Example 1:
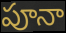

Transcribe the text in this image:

పూనా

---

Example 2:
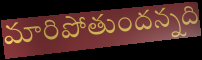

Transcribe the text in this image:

మారిపోతుందన్నది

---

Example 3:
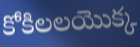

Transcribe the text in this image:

కోకిలలయొక్క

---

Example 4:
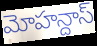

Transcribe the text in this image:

మోహన్దాస్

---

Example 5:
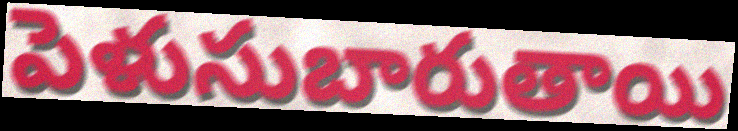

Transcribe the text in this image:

పెళుసుబారుతాయి